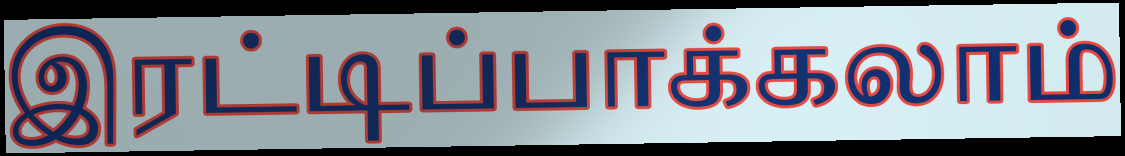
இரட்டிப்பாக்கலாம்